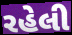
રહેલી